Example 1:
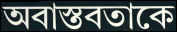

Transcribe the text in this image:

অবাস্তবতাকে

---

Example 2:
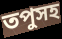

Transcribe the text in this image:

তপুসহ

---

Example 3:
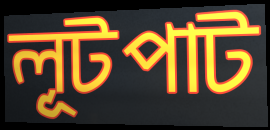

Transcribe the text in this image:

লূটপাট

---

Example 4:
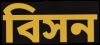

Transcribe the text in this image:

বিসন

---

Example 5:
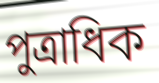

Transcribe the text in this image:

পুত্রাধিক